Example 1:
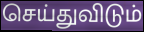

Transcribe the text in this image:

செய்துவிடும்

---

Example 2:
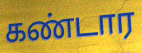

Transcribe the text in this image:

கண்டார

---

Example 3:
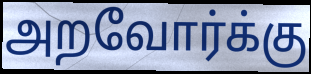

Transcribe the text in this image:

அறவோர்க்கு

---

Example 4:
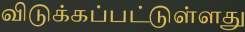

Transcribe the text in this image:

விடுக்கப்பட்டுள்ளது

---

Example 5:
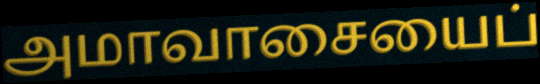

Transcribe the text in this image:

அமாவாசையைப்